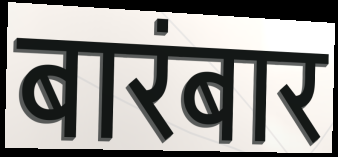
बारंबार